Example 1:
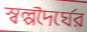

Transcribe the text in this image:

স্বল্পদৈর্ঘের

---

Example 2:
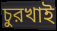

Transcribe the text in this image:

চুরখাই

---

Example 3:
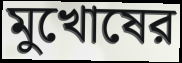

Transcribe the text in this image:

মুখোষের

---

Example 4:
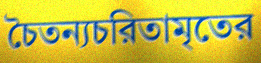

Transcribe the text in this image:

চৈতন্যচরিতামৃতের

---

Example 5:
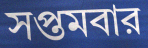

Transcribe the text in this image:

সপ্তমবার